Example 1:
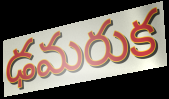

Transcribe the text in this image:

ఢమరుక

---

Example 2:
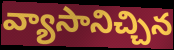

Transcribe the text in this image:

వ్యాసానిచ్చిన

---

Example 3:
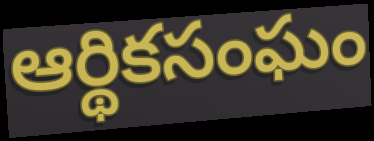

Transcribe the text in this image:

ఆర్థికసంఘం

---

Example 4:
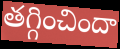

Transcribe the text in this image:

తగ్గించిందా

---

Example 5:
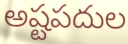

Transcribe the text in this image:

అష్టపదుల